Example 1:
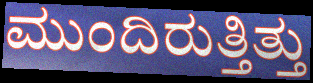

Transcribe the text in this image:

ಮುಂದಿರುತ್ತಿತ್ತು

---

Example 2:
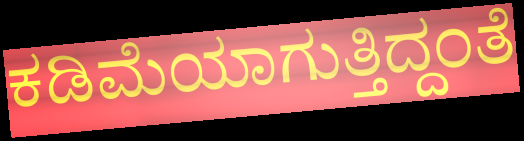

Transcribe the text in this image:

ಕಡಿಮೆಯಾಗುತ್ತಿದ್ದಂತೆ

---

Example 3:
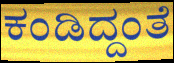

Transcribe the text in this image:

ಕಂಡಿದ್ದಂತೆ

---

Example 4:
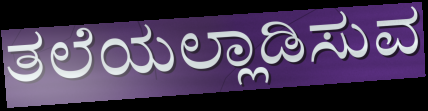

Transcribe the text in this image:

ತಲೆಯಲ್ಲಾಡಿಸುವ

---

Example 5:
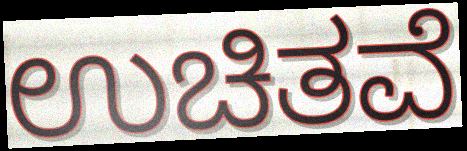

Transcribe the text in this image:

ಉಚಿತವೆ